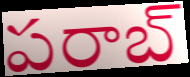
పరాబ్